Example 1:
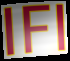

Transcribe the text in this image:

IFI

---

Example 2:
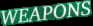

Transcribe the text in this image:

WEAPONS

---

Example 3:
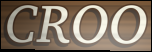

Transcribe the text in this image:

CROO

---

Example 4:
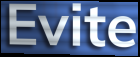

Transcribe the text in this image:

Evite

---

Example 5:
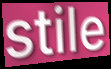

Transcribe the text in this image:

stile